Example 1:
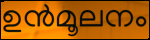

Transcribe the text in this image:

ഉൻമൂലനം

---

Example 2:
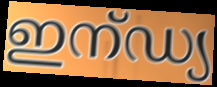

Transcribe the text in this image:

ഇന്ഡ്യ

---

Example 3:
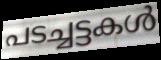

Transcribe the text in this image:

പടച്ചട്ടകൾ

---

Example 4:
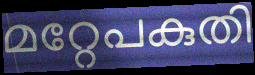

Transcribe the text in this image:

മറ്റേപകുതി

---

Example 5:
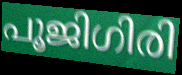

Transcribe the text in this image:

പൂജിഗിരി